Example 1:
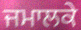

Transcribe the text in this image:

ਜਮਾਲਕੇ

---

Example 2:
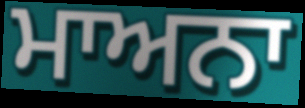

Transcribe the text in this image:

ਮਾਅਨਾ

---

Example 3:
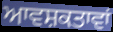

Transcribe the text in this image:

ਆਵਸ਼ਕਤਾਵਾਂ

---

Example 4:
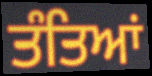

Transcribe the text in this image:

ਤੰਤਿਆਂ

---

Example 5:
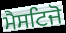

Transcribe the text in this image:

ਮੈਸਟਿਜੋ